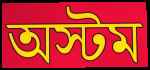
অস্টম